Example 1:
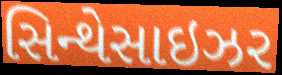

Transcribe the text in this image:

સિન્થેસાઇઝર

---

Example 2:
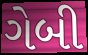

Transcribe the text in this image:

ગેબી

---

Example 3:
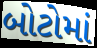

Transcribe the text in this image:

બોટોમાં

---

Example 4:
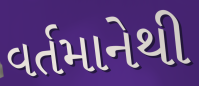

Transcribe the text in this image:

વર્તમાનેથી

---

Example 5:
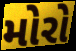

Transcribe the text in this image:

મોરો